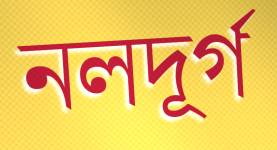
নলদূর্গ